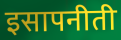
इसापनीती